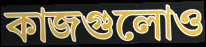
কাজগুলোও